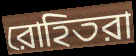
রোহিতরা